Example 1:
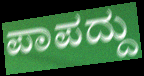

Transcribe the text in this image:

ಪಾಪದ್ದು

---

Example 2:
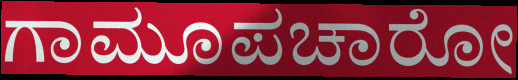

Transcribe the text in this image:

ಗಾಮೂಪಚಾರೋ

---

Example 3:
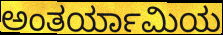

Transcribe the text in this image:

ಅಂತರ್ಯಾಮಿಯ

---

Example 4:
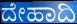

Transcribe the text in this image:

ದೇಹಾದಿ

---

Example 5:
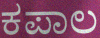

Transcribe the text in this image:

ಕಪಾಲ